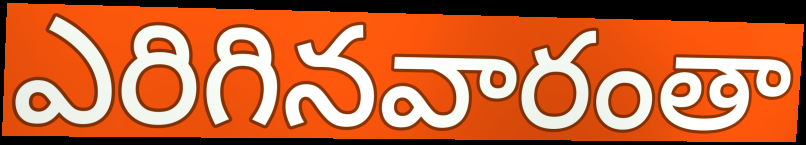
ఎరిగినవారంతా